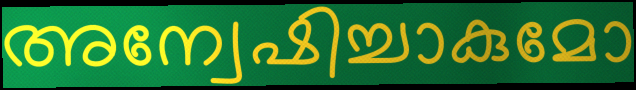
അന്വേഷിച്ചാകുമോ